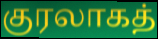
குரலாகத்